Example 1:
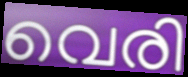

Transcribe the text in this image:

വെരി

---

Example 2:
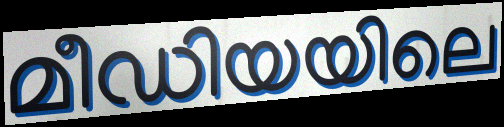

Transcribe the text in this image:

മീഡിയയിലെ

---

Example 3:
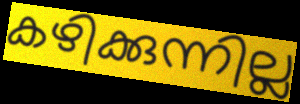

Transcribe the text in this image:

കഴിക്കുന്നില്ല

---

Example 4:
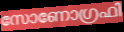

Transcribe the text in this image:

സോണോഗ്രഫി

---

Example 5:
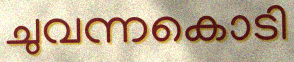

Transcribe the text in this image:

ചുവന്നകൊടി